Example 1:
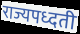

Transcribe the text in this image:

राज्यपध्दती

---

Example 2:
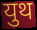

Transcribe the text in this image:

युथ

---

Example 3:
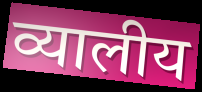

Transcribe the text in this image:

व्यालीय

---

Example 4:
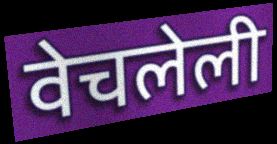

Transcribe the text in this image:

वेचलेली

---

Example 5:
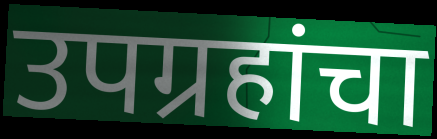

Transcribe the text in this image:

उपग्रहांचा